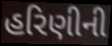
હરિણીની